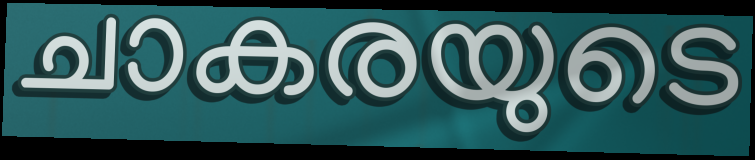
ചാകരയുടെ